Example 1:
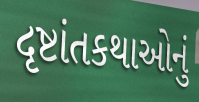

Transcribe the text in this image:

દૃષ્ટાંતકથાઓનું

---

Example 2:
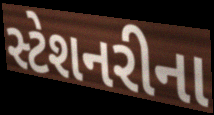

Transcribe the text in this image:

સ્ટેશનરીના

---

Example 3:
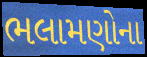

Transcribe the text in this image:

ભલામણોના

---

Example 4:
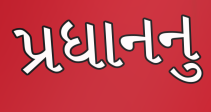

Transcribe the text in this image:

પ્રધાનનુ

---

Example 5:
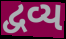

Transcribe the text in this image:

દ્વવ્ય